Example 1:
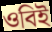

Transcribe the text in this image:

ওবিই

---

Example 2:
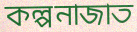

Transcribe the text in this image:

কল্পনাজাত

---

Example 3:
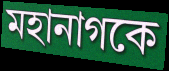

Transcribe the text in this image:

মহানাগকে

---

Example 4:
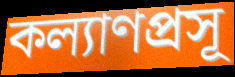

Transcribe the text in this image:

কল্যাণপ্রসূ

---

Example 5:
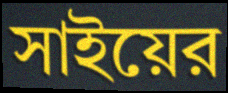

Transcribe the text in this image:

সাইয়ের